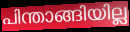
പിന്താങ്ങിയില്ല